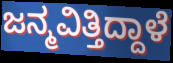
ಜನ್ಮವಿತ್ತಿದ್ದಾಳೆ